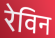
रेविन